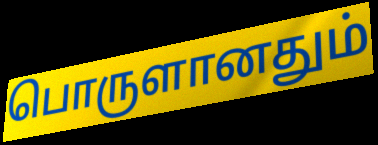
பொருளானதும்